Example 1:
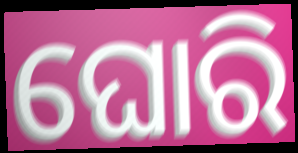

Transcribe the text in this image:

ଘୋରି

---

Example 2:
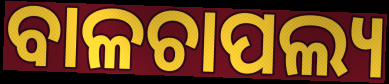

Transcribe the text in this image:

ବାଳଚାପଲ୍ୟ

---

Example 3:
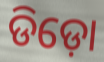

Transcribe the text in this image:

ଡିଡ଼ୋ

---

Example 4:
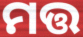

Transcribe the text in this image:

ମତ୍ତ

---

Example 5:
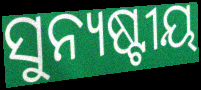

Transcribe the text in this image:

ସୁନ୍ୟଷ୍ଟୀୟ